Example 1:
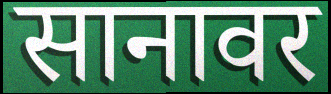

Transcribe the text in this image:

सानावर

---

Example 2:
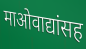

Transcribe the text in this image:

माओवाद्यांसह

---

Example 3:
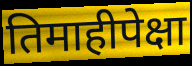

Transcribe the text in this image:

तिमाहीपेक्षा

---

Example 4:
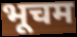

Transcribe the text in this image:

भूचम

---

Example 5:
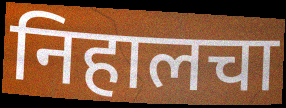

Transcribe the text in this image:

निहालचा